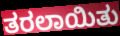
ತರಲಾಯಿತು